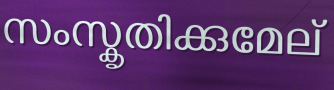
സംസ്കൃതിക്കുമേല്